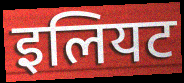
इलियट